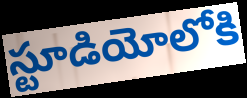
స్టూడియోలోకి